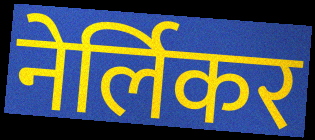
नेर्लिकर